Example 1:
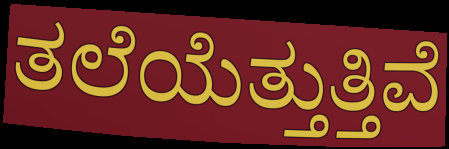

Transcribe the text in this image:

ತಲೆಯೆತ್ತುತ್ತಿವೆ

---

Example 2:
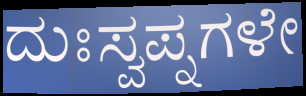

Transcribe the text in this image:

ದುಃಸ್ವಪ್ನಗಳೇ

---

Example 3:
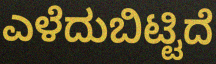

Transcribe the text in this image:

ಎಳೆದುಬಿಟ್ಟಿದೆ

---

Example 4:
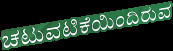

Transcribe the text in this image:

ಚಟುವಟಿಕೆಯಿಂದಿರುವ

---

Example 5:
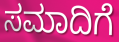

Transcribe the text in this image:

ಸಮಾದಿಗೆ